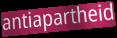
antiapartheid